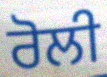
ਰੋਲੀ